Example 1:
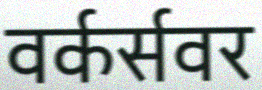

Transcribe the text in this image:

वर्कर्सवर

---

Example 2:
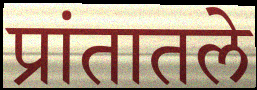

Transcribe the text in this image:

प्रांतातले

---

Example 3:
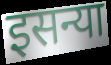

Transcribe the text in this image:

इसन्या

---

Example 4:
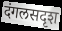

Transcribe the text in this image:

दंगलसदृश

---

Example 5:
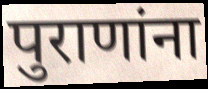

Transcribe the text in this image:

पुराणांना